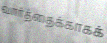
வார்த்தைக்காகக்